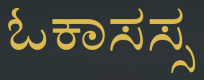
ಓಕಾಸಸ್ಸ